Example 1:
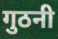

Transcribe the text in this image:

गुठनी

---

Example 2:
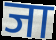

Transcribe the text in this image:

जा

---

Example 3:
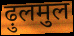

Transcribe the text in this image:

ढ़ुलमुल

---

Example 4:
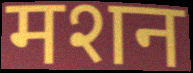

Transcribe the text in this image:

मशन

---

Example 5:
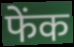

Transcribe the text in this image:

फेंक